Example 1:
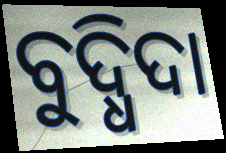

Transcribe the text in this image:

ବୁଦ୍ଧିଦା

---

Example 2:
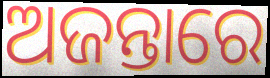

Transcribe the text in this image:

ଅଜନ୍ତାରେ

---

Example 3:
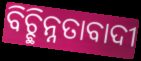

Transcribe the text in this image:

ବିଚ୍ଛିନ୍ନତାବାଦୀ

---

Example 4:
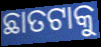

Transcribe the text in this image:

ଛାତଟାକୁ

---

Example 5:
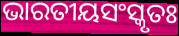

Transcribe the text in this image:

ଭାରତୀୟସଂସ୍କୃତଃ